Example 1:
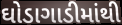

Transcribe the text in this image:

ઘોડાગાડીમાંથી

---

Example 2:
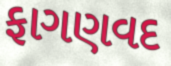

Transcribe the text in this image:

ફાગણવદ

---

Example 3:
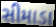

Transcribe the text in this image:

સીમાડા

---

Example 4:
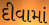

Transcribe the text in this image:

દીવામાં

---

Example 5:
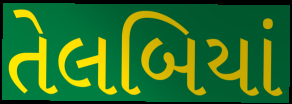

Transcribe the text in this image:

તેલબિયાં